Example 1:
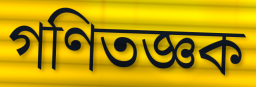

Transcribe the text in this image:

গণিতজ্ঞক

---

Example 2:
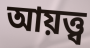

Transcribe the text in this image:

আয়ত্ত্ব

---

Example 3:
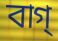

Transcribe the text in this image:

বাগ্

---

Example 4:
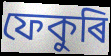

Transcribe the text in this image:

ফেকুৰি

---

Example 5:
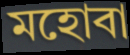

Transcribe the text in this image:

মহোবা